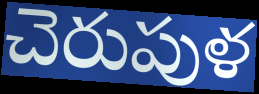
చెరుపుళ